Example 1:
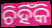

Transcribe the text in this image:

ଚିହିଁକି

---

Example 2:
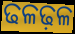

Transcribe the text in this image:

ଢଳଢ଼ଳ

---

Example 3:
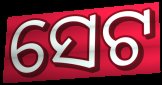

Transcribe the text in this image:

ସେଟ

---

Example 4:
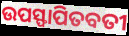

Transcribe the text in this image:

ଉପସ୍ଫାପିତବତୀ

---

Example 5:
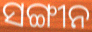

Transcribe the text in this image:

ସଙ୍ଗୀନ